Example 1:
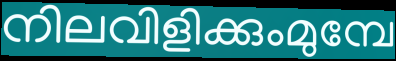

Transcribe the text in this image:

നിലവിളിക്കുംമുമ്പേ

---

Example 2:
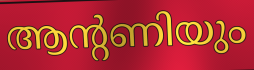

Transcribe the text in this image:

ആന്റണിയും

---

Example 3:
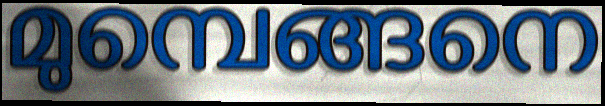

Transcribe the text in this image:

മുമ്പെങ്ങനെ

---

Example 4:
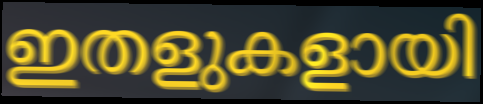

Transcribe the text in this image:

ഇതളുകളായി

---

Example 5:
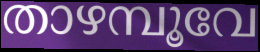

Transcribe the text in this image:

താഴമ്പൂവേ